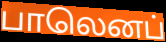
பாலெனப்